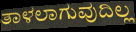
ತಾಳಲಾಗುವುದಿಲ್ಲ